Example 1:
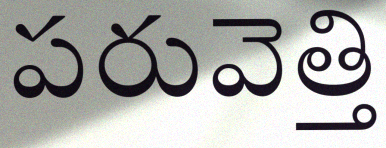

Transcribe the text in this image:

పరువెత్తి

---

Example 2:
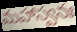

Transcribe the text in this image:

మహాస్వనః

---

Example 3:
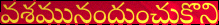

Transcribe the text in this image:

వశమునందుంచుకొని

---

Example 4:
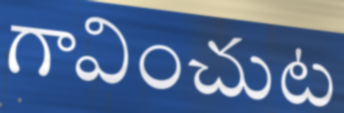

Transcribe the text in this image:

గావించుట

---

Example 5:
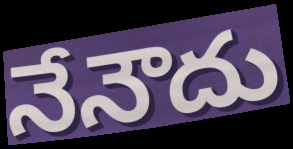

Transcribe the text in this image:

నేనౌదు